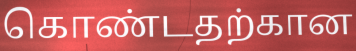
கொண்டதற்கான